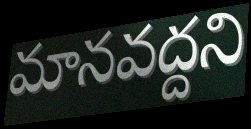
మానవద్దని